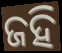
ଜହି